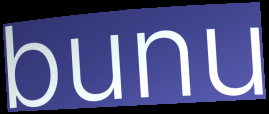
bunu